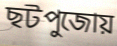
ছটপুজোয়